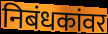
निबंधकांवर